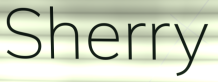
Sherry